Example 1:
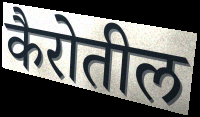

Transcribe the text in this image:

कैरोतील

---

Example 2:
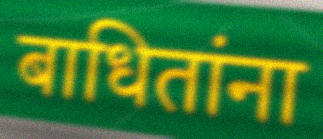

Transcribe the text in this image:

बाधितांना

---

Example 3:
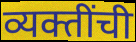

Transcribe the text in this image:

व्यक्‍तींची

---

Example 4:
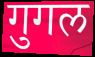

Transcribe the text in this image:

गुगल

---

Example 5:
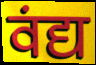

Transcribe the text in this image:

वंद्य